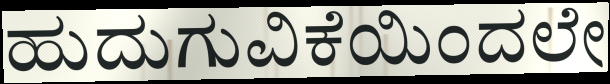
ಹುದುಗುವಿಕೆಯಿಂದಲೇ